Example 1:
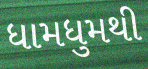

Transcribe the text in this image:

ધામધુમથી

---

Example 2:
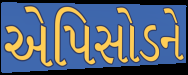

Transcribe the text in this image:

એપિસોડને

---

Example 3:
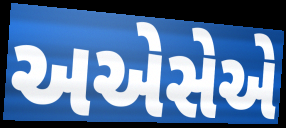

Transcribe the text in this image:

અએસેએ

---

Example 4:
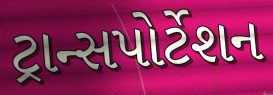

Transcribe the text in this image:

ટ્રાન્સપોર્ટેશન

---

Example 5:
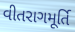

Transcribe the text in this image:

વીતરાગમૂર્તિ